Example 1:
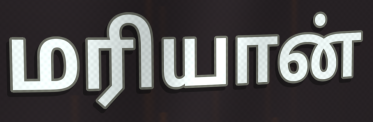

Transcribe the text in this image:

மரியான்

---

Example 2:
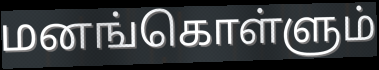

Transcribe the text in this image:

மனங்கொள்ளும்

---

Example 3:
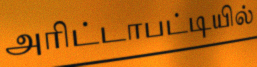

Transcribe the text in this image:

அரிட்டாபட்டியில்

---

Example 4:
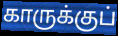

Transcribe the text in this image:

காருக்குப்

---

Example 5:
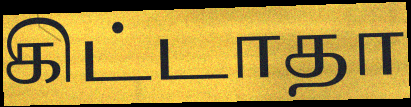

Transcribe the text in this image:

கிட்டாதா